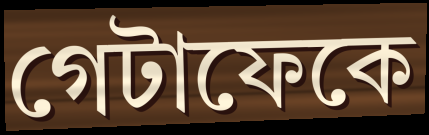
গেটাফেকে